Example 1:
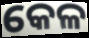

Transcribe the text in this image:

କେଳ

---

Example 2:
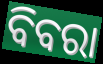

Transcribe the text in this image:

ବିବରା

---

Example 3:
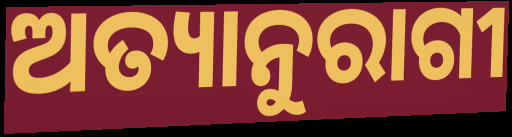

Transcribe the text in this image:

ଅତ୍ୟାନୁରାଗୀ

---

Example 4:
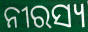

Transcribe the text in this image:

ନୀରସ୍ୟ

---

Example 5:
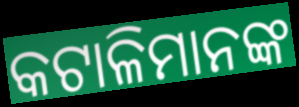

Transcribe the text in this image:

କଟାଳିମାନଙ୍କ